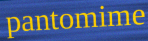
pantomime